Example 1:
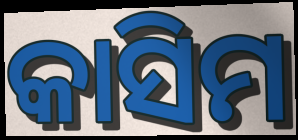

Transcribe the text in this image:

କାସିମ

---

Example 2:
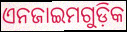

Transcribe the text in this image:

ଏନଜାଇମଗୁଡ଼ିକ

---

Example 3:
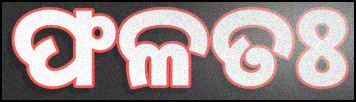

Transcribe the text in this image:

ଫଳତଃ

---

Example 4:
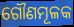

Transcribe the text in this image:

ଗୌଣମୂଳକ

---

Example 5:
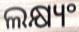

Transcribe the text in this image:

ଲକ୍ଷ୍ୟଂ